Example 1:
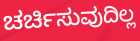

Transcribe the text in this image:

ಚರ್ಚಿಸುವುದಿಲ್ಲ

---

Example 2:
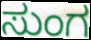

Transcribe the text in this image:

ಸುಂಗ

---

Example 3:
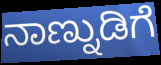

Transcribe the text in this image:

ನಾಣ್ನುಡಿಗೆ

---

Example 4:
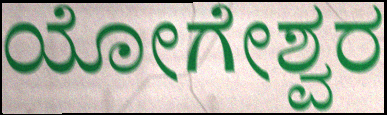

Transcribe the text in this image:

ಯೋಗೇಶ್ವರ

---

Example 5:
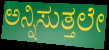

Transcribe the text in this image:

ಅನ್ನಿಸುತ್ತಲೇ